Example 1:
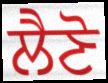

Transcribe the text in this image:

ਲੈਣੋ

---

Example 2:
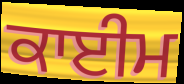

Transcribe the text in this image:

ਕਾਈਮ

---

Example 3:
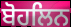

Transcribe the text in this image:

ਬੋਹਲਿਨ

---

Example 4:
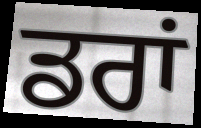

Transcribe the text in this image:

ਡਰਾਂ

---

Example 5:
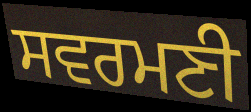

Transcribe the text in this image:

ਸਵਰਮਣੀ